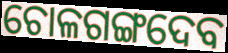
ଚୋଳଗଙ୍ଗଦେବ